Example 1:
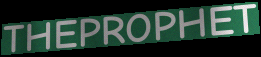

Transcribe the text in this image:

THEPROPHET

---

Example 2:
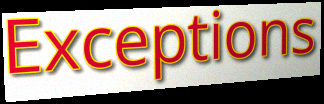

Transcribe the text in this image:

Exceptions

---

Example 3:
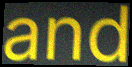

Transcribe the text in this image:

and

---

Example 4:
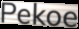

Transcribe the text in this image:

Pekoe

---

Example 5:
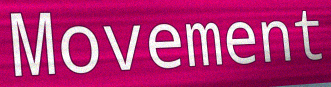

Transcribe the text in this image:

Movement